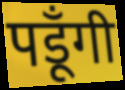
पडूँगी